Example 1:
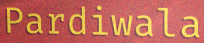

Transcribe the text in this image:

Pardiwala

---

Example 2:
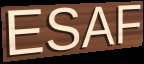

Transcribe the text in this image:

ESAF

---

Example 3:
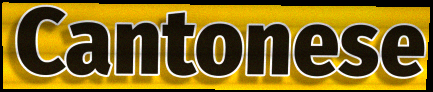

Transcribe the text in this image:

Cantonese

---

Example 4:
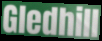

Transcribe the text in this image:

Gledhill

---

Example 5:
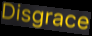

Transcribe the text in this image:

Disgrace